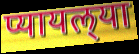
प्यायल्या